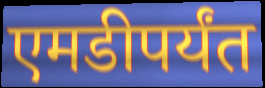
एमडीपर्यंत